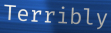
Terribly